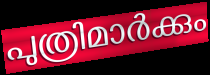
പുത്രിമാർക്കും